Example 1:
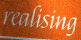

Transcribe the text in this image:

realising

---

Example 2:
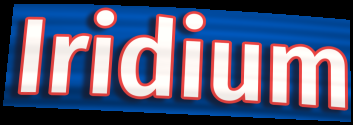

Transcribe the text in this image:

Iridium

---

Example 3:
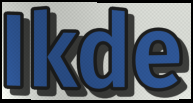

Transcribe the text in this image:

Ikde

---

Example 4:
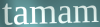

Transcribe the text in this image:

tamam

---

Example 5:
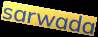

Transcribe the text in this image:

sarwada